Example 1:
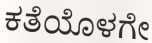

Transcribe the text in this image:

ಕತೆಯೊಳಗೇ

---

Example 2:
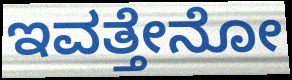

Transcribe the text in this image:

ಇವತ್ತೇನೋ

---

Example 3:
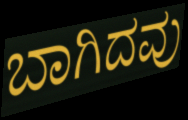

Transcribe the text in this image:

ಬಾಗಿದವು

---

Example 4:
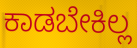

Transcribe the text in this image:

ಕಾಡಬೇಕಿಲ್ಲ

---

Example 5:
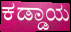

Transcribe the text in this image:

ಕಡ್ಡಾಯ